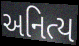
અનિત્ય